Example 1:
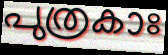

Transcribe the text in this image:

പുത്രകാഃ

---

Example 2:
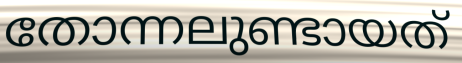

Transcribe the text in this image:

തോന്നലുണ്ടായത്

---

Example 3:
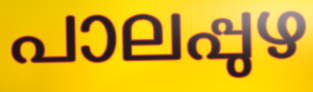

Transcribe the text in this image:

പാലപ്പുഴ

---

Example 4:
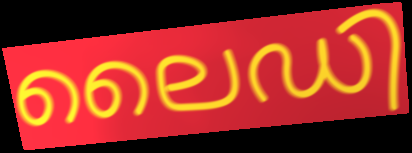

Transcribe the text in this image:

ലൈഡി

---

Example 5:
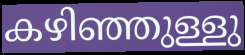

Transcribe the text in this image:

കഴിഞ്ഞുള്ളു